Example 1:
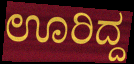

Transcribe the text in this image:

ಊರಿದ್ದ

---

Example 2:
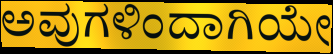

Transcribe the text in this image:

ಅವುಗಳಿಂದಾಗಿಯೇ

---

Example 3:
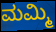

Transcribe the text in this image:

ಮಮ್ಮಿ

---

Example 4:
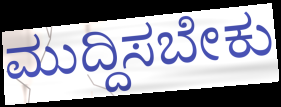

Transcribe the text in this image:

ಮುದ್ದಿಸಬೇಕು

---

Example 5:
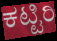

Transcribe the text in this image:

ಕಟ್ಟಿರಿ